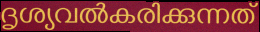
ദൃശ്യവൽകരിക്കുന്നത്